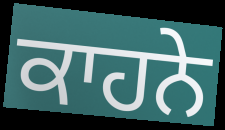
ਕਾਹਨੇ